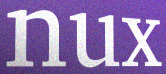
nux